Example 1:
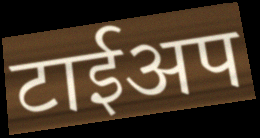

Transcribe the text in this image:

टाईअप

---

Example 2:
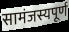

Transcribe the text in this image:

सामंजस्यपूर्ण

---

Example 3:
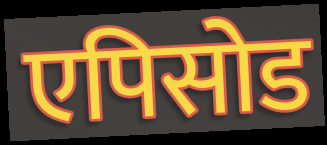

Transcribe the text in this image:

एपिसोड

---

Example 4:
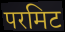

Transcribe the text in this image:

परमिट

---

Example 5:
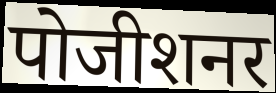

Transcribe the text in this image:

पोजीशनर